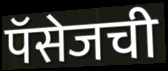
पॅसेजची